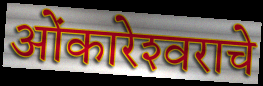
ओंकारेश्वराचे